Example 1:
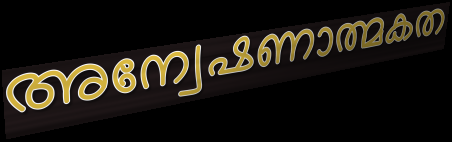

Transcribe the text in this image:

അന്വേഷണാത്മകത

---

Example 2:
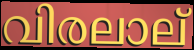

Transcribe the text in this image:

വിരലാല്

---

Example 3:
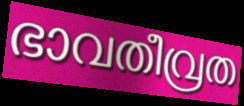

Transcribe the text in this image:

ഭാവതീവ്രത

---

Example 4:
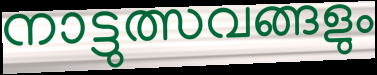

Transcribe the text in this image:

നാട്ടുത്സവങ്ങളും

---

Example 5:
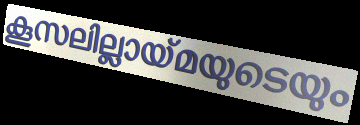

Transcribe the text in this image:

കൂസലില്ലായ്മയുടെയും